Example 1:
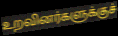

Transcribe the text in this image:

உறவினர்களுக்குச்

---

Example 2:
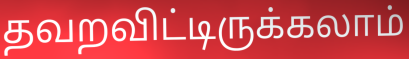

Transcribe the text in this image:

தவறவிட்டிருக்கலாம்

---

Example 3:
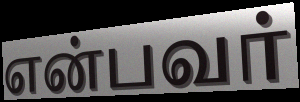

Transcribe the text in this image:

என்பவர்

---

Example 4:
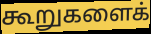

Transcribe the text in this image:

கூறுகளைக்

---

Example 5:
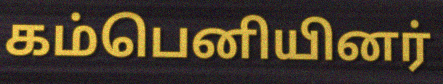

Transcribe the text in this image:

கம்பெனியினர்